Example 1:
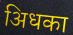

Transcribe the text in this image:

अिधका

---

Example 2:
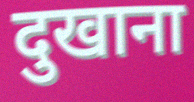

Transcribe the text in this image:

दुखाना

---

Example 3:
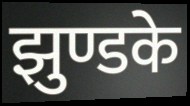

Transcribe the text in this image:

झुण्डके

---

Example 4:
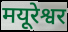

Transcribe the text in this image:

मयूरेश्वर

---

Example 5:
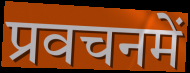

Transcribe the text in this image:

प्रवचनमें